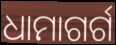
ଧାମାଗର୍ଗ